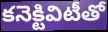
కనెక్టివిటీతో